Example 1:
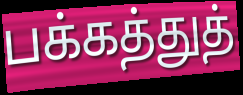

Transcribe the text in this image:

பக்கத்துத்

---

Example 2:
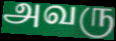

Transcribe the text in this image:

அவரு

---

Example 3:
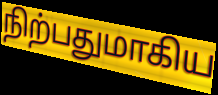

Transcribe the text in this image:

நிற்பதுமாகிய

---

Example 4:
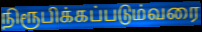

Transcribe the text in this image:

நிரூபிக்கப்படும்வரை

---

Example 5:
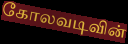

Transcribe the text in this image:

கோலவடிவின்